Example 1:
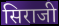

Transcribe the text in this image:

सिराजी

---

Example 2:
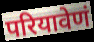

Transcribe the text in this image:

परियावेणं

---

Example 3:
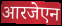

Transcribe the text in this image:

आरजेएन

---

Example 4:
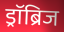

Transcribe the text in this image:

ड्रॉब्रिज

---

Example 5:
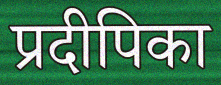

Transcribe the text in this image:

प्रदीपिका